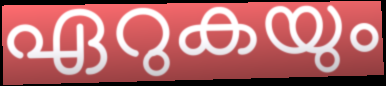
ഏറുകയും